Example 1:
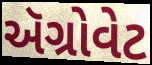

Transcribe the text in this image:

ઍગ્રોવેટ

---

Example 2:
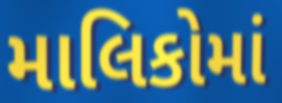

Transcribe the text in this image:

માલિકોમાં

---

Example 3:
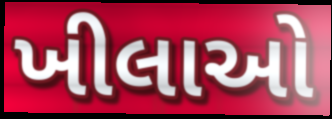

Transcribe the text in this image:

ખીલાઓ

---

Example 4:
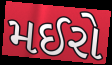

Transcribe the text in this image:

મઈરો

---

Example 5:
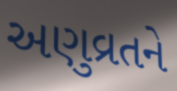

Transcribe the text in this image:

અણુવ્રતને